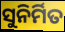
ସୁନିର୍ମିତ